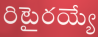
రిటైరయ్యే